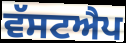
ਵੱਸਟਐਪ